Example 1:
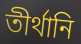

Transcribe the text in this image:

তীর্থানি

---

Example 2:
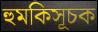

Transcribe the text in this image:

হুমকিসূচক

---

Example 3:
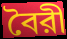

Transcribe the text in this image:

বৈরী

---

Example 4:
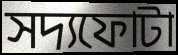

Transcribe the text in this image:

সদ্যফোটা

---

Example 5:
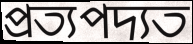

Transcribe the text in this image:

প্রত্যপদ্যত